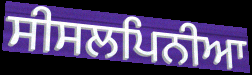
ਸੀਸਲਪਿਨੀਆ